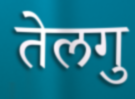
तेलगु